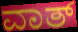
ವಾತ್